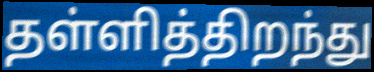
தள்ளித்திறந்து